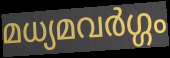
മധ്യമവർഗ്ഗം